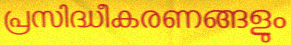
പ്രസിദ്ധീകരണങ്ങളും